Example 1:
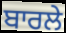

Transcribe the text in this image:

ਬਾਰਲੇ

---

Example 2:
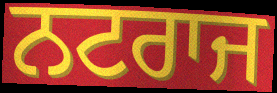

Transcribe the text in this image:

ਨਟਰਾਜ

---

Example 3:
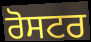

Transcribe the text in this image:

ਰੋਸਟਰ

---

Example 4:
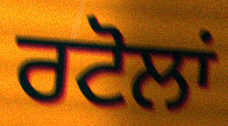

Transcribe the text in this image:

ਰਟੋਲਾਂ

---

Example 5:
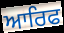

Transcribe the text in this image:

ਆਰਿਫ